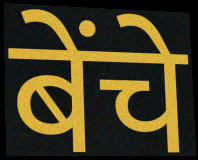
बेंचे